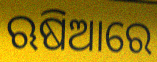
ଋଷିଆରେ